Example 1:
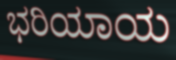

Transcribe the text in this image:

ಭರಿಯಾಯ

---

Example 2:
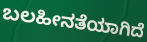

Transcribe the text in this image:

ಬಲಹೀನತೆಯಾಗಿದೆ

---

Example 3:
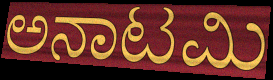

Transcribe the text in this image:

ಅನಾಟಮಿ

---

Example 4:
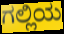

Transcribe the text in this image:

ಗಲ್ಲಿಯ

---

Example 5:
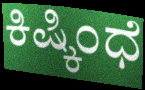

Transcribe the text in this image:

ಕಿಷ್ಕಿಂಧೆ